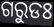
ଗରୁଡଃ